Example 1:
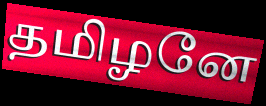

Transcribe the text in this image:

தமிழனே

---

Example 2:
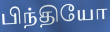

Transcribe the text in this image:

பிந்தியோ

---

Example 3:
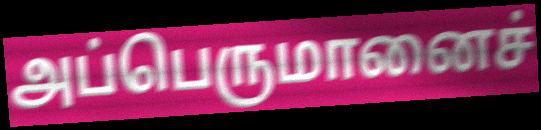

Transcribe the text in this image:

அப்பெருமானைச்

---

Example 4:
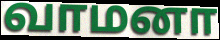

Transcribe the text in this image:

வாமனா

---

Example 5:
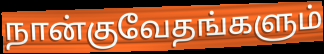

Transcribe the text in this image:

நான்குவேதங்களும்